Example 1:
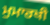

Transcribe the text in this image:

ਮੁਮਾਰਖੀ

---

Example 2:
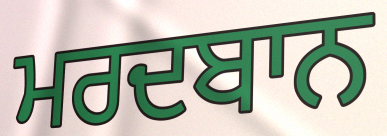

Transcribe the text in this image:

ਮਰਦਬਾਨ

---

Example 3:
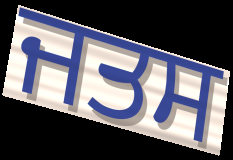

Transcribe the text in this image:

ਜਤਸ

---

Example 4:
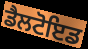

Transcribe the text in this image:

ਡੈਲਟੋਇਡ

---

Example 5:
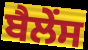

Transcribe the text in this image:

ਬੈਲੇਂਸ